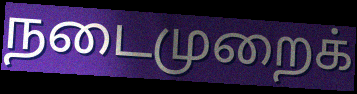
நடைமுறைக்